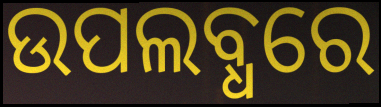
ଉପଲବ୍ଧରେ